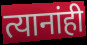
त्यानांही